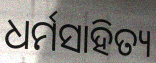
ଧର୍ମସାହିତ୍ୟ